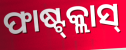
ଫାଷ୍ଟ୍‍କ୍ଲାସ୍